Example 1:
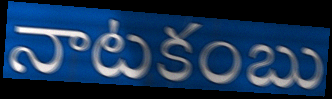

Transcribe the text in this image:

నాటకంబు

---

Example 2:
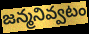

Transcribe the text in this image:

జన్మనివ్వటం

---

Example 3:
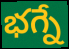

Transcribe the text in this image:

భగ్నే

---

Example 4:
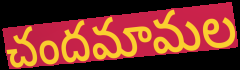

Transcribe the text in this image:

చందమామల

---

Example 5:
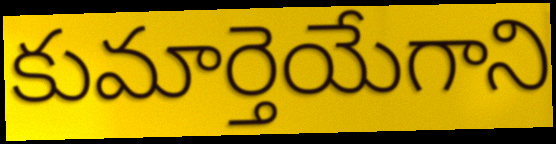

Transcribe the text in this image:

కుమార్తెయేగాని